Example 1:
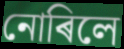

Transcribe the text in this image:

নোৰিলে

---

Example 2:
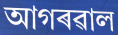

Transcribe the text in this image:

আগৰৱাল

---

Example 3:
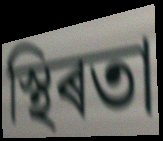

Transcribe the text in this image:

স্থিৰতা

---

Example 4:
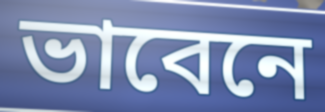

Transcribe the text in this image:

ভাবেনে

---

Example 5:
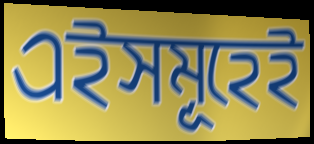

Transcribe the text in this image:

এইসমূহেই